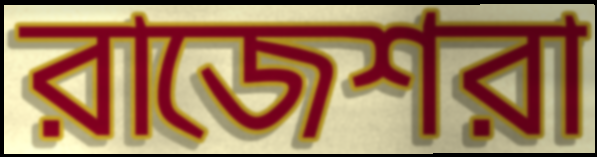
রাজেশরা